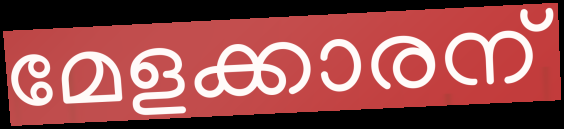
മേളക്കാരന്